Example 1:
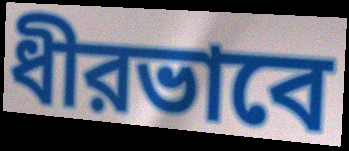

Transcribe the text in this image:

ধীরভাবে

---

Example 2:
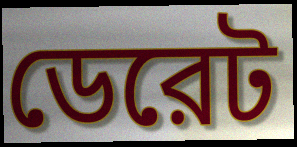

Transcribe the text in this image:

ডেরেট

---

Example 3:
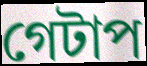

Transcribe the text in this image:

গেটাপ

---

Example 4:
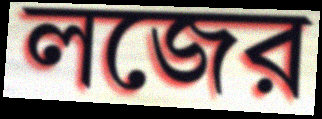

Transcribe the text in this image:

লজের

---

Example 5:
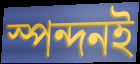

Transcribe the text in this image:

স্পন্দনই